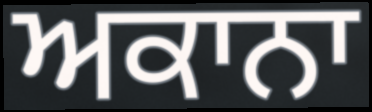
ਅਕਾਨਾ